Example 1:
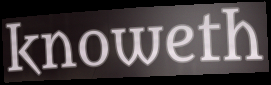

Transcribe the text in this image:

knoweth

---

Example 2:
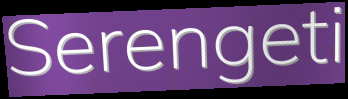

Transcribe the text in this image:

Serengeti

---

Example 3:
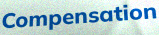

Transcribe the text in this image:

Compensation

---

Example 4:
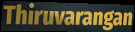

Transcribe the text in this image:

Thiruvarangan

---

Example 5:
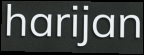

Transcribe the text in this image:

harijan